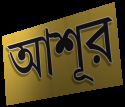
আশূর